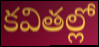
కవితల్లో